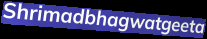
Shrimadbhagwatgeeta